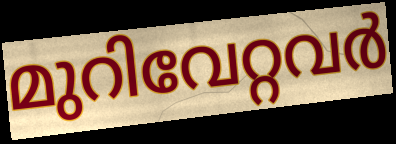
മുറിവേറ്റവർ